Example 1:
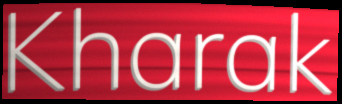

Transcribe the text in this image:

Kharak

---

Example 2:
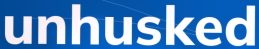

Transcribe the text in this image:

unhusked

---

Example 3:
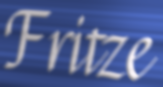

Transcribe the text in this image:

Fritze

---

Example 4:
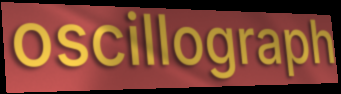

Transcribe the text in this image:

oscillograph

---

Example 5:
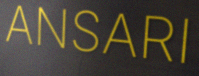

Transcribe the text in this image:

ANSARI